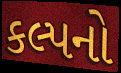
કલ્પનો